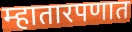
म्हातारपणात